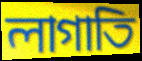
লাগাতি